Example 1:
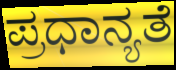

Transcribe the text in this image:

ಪ್ರಧಾನ್ಯತೆ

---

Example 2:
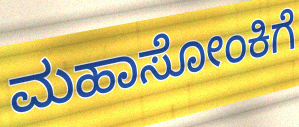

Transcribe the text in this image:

ಮಹಾಸೋಂಕಿಗೆ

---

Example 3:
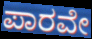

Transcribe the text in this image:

ಪಾರವೇ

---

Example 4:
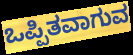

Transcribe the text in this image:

ಒಪ್ಪಿತವಾಗುವ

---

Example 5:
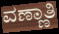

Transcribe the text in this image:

ವಣ್ಣಾತಿ